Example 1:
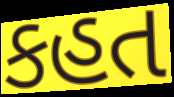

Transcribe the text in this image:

કહત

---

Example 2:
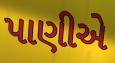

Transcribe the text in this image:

પાણીએ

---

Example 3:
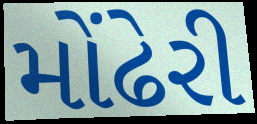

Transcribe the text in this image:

મોંઢેરી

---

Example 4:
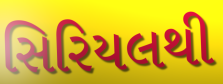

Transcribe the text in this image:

સિરિયલથી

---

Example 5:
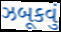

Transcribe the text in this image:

ઝબૂકવું